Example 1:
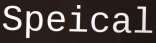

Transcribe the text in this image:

Speical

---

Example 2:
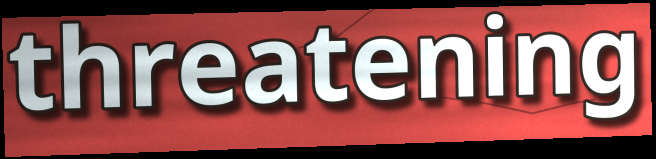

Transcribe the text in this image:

threatening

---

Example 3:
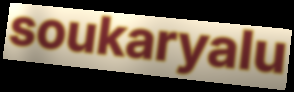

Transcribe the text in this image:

soukaryalu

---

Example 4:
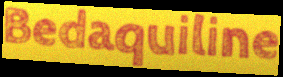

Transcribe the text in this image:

Bedaquiline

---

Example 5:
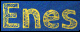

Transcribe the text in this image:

Enes